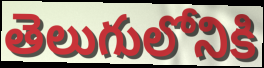
తెలుగులోనికి